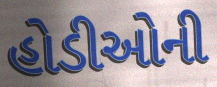
હોડીઓની